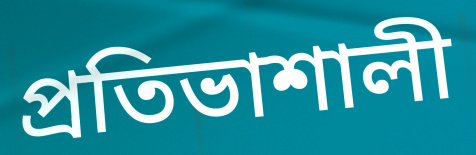
প্ৰতিভাশালী